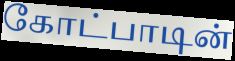
கோட்பாடின்